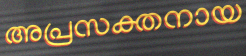
അപ്രസക്തനായ